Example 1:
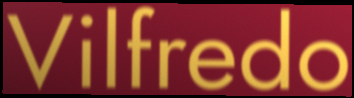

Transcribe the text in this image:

Vilfredo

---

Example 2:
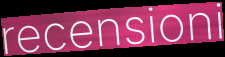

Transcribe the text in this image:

recensioni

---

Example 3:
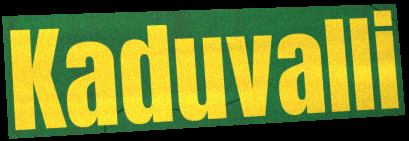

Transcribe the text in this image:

Kaduvalli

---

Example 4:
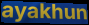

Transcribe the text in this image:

ayakhun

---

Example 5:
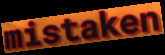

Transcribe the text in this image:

mistaken